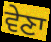
ਵੇਣਾ